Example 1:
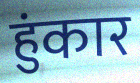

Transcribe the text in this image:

हुंकार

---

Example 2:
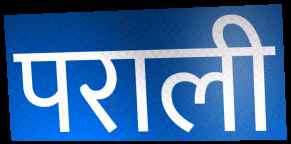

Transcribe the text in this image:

पराली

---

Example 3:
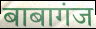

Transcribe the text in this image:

बाबागंज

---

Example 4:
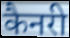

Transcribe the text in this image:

कैनरी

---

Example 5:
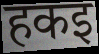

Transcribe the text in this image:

हकइ